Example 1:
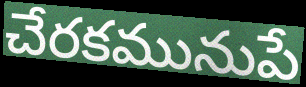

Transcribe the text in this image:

చేరకమునుపే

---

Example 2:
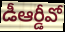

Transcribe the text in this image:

డీఆర్డీవో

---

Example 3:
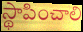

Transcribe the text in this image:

స్థాపించాలి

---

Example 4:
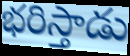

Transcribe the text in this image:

భరిస్తాడు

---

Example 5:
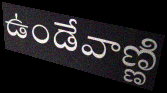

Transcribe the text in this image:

ఉండేవాణ్ణి